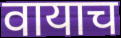
वायाच